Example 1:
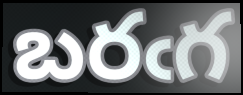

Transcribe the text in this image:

బరఁగ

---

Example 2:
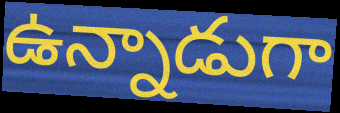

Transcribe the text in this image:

ఉన్నాడుగా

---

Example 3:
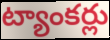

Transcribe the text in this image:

ట్యాంకర్లు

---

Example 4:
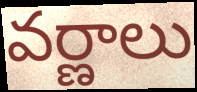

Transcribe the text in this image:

వర్ణాలు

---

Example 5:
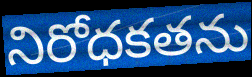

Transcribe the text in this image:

నిరోధకతను